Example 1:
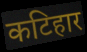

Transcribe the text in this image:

कटिहार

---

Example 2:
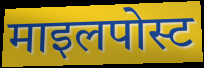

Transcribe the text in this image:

माइलपोस्ट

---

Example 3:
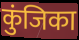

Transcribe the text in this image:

कुंजिका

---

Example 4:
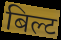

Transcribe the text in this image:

बिल्ट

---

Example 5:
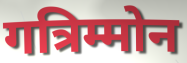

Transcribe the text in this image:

गत्रिम्मोन